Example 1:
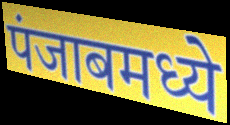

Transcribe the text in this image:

पंजाबमध्ये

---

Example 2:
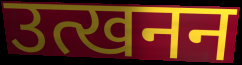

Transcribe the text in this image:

उत्खनन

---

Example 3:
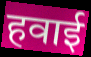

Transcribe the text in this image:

हवाई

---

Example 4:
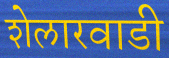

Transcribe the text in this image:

शेलारवाडी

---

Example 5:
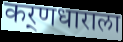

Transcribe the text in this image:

कर्णधाराला